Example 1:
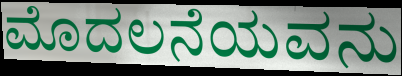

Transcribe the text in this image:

ಮೊದಲನೆಯವನು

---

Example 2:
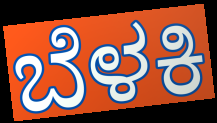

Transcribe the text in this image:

ಬೆಳಕಿ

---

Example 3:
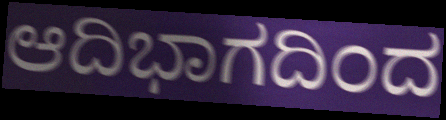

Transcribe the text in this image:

ಆದಿಭಾಗದಿಂದ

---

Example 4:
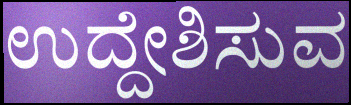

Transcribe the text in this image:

ಉದ್ದೇಶಿಸುವ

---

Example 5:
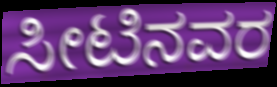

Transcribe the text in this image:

ಸೀಟಿನವರ